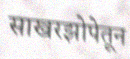
साखरझोपेतून